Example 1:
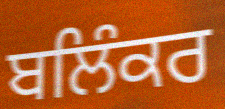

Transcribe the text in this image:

ਬਲਿੰਕਰ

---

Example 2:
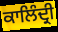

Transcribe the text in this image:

ਕਾਲਿੰਦ੍ਰੀ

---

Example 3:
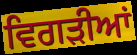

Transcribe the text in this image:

ਵਿਗੜੀਆਂ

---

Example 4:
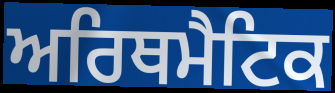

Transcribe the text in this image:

ਅਰਿਥਮੈਟਿਕ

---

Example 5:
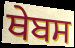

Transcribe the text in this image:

ਥੇਬਸ